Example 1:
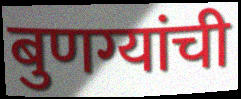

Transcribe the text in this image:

बुणग्यांची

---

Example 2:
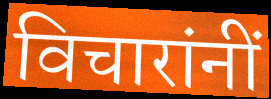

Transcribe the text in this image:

विचारांनीं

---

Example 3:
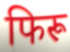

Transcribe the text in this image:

फिरू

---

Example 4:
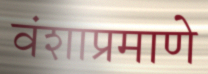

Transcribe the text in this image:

वंशाप्रमाणे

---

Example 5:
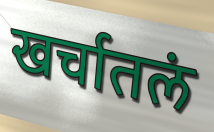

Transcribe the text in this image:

खर्चातलं